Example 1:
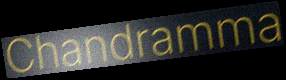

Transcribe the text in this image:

Chandramma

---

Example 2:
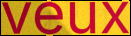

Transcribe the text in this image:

veux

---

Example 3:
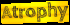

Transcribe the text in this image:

Atrophy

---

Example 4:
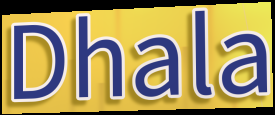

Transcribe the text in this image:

Dhala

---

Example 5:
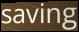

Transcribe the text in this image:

saving